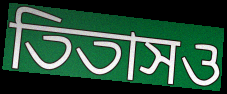
তিতাসও